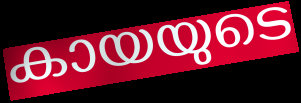
കായയുടെ